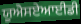
ਯੂਐਸਏਆਈਡੀ